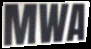
MWA